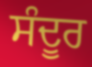
ਸੰਦੂਰ